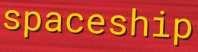
spaceship